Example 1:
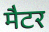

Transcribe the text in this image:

मैटर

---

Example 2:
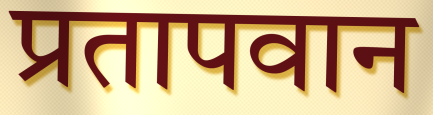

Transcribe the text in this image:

प्रतापवान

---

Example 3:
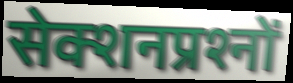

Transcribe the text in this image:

सेक्शनप्रश्नों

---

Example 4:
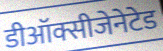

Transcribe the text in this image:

डीऑक्सीजेनेटेड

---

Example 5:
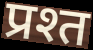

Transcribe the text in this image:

प्रश्त